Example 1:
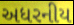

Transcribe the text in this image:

અધરનીય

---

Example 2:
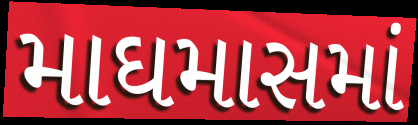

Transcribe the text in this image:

માઘમાસમાં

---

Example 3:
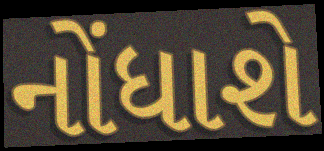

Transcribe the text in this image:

નોંધાશે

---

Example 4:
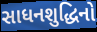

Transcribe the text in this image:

સાધનશુદ્ધિનો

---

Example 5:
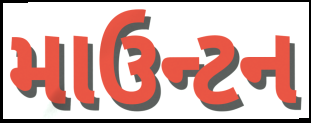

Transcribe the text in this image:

માઉન્ટન